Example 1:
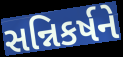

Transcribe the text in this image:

સન્નિકર્ષને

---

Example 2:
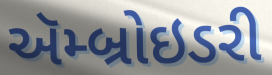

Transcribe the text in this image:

ઍમ્બ્રોઇડરી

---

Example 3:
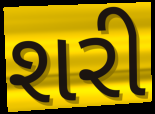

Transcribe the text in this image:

શરી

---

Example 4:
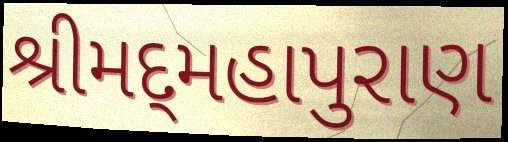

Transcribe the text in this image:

શ્રીમદ્‌મહાપુરાણ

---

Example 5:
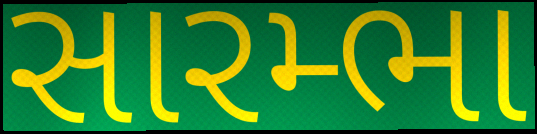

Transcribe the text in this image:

સારમ્ભા